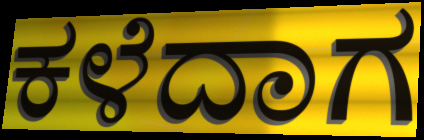
ಕಳೆದಾಗ